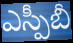
ఎస్పీబీ